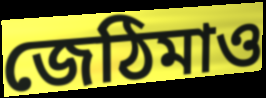
জেঠিমাও